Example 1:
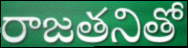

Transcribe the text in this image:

రాజతనితో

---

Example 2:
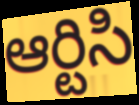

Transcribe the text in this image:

ఆర్టిసి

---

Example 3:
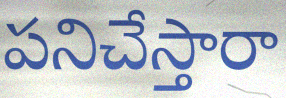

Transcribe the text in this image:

పనిచేస్తారా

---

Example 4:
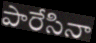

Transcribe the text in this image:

పారేసినా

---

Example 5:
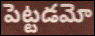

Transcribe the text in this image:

పెట్టడమో